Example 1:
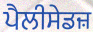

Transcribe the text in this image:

ਪੈਲੀਸੇਡਜ਼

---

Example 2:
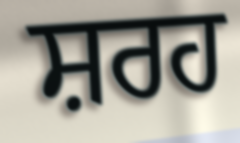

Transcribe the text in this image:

ਸ਼ਰਹ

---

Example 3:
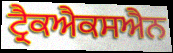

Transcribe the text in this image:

ਟ੍ਰੈਕਐਕਸਐਨ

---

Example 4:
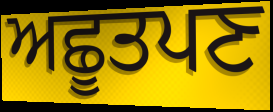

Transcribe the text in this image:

ਅਛੂਤਪਣ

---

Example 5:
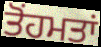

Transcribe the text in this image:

ਤੋਂਹਮਤਾਂ